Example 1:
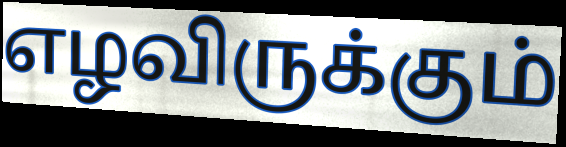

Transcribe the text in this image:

எழவிருக்கும்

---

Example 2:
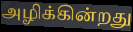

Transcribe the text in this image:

அழிக்கின்றது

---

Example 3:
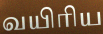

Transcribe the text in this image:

வயிரிய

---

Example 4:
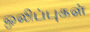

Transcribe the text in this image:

ஒலிப்புகள்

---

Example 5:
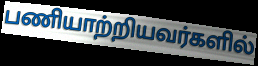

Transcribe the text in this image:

பணியாற்றியவர்களில்